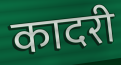
कादरी